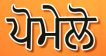
ਪੋਮੇਲੋ